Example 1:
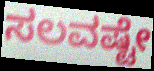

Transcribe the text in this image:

ಸಲವಷ್ಟೇ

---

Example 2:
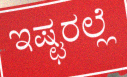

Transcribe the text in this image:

ಇಷ್ಟರಲ್ಲೆ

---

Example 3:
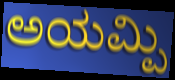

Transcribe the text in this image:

ಅಯಮ್ಪಿ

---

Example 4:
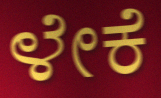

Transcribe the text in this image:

ಳೇಕೆ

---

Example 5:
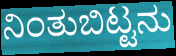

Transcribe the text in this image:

ನಿಂತುಬಿಟ್ಟನು